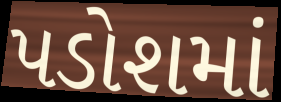
પડોશમાં